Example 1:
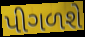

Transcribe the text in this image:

પીગળશે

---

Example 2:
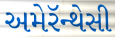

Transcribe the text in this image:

અમેરૅન્થેસી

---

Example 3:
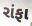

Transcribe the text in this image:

રાંફા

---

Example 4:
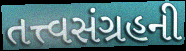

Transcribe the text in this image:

તત્ત્વસંગ્રહની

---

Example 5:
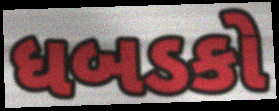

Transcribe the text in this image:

ધબડકો